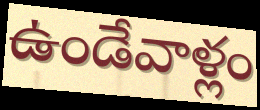
ఉండేవాళ్లం